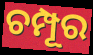
ଚମ୍ପୂର